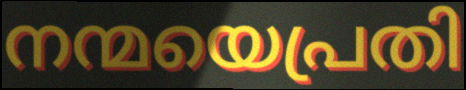
നന്മയെപ്രതി